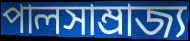
পালসাম্রাজ্য